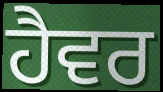
ਹੈਵਰ